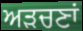
ਅੜਚਣਾਂ